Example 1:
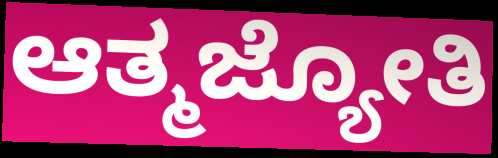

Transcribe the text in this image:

ಆತ್ಮಜ್ಯೋತಿ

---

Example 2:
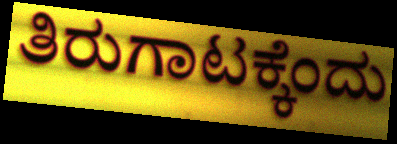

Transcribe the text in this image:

ತಿರುಗಾಟಕ್ಕೆಂದು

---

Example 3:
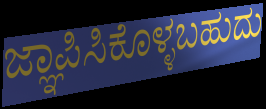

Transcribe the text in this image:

ಜ್ಞಾಪಿಸಿಕೊಳ್ಳಬಹುದು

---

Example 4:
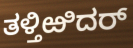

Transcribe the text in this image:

ತಳ್ತಿಱಿದರ್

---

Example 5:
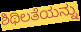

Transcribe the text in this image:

ಶಿಥಿಲತೆಯನ್ನು